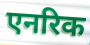
एनरिक